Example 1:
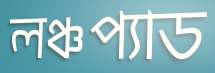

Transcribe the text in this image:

লঞ্চপ্যাড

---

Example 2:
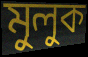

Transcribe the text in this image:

মুলুক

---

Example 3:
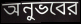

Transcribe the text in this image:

অনুভবের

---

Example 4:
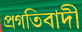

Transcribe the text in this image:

প্রগতিবাদী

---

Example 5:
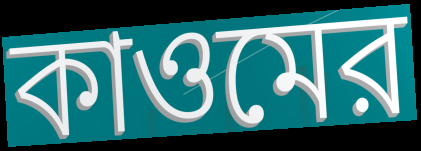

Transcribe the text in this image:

কাওমের